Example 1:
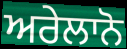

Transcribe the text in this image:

ਅਰੇਲਾਨੋ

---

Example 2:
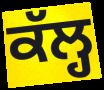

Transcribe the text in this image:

ਕੱਲ੍ਹ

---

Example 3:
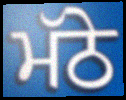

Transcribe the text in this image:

ਮੱਠੇ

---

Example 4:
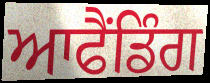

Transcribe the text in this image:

ਆਫੈਂਡਿੰਗ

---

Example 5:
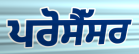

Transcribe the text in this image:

ਪਰੋਸੈੱਸਰ